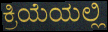
ಕ್ರಿಯೆಯಲ್ಲಿ